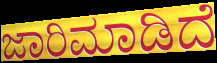
ಜಾರಿಮಾಡಿದೆ